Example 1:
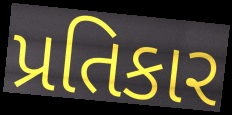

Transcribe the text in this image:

પ્રતિકાર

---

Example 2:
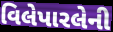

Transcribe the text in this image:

વિલેપારલેની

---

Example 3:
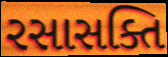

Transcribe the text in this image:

રસાસક્તિ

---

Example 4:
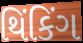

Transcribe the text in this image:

થિંકિંગ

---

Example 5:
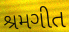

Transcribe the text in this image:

શ્રમગીત